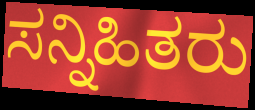
ಸನ್ನಿಹಿತರು